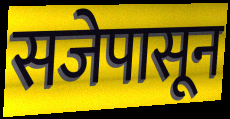
सजेपासून